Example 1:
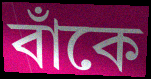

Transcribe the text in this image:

বাঁকে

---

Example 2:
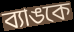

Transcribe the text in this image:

ব্যাঙকে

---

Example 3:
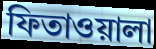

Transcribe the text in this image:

ফিতাওয়ালা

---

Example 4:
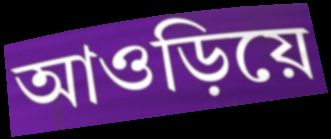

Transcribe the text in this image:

আওড়িয়ে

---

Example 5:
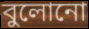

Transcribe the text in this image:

বুলোনো